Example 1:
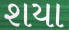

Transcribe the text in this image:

શયા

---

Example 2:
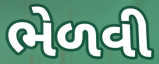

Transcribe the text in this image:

ભેળવી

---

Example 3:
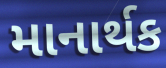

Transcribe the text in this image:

માનાર્થક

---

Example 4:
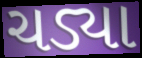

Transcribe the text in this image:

ચડ્યા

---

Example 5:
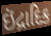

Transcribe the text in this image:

ઇંદ્રાદિક